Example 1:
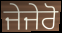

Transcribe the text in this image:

ਜੇਜੇਰੋ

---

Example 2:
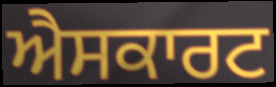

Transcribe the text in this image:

ਐਸਕਾਰਟ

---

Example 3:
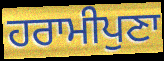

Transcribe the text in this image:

ਹਰਾਮੀਪੁਣਾ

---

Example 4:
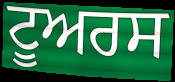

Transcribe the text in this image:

ਟੂਅਰਸ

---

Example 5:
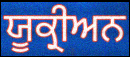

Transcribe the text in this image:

ਯੂਕ੍ਰੀਅਨ